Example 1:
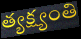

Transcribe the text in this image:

త్యక్ష్యంతి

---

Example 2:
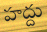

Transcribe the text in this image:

హద్దు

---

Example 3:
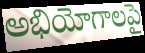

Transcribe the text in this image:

అభియోగాలపై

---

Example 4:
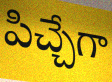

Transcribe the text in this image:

పిచ్చేగా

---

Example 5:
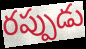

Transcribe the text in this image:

రప్పుడు